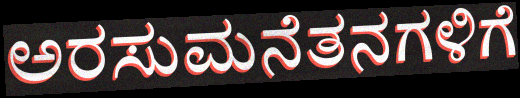
ಅರಸುಮನೆತನಗಳಿಗೆ